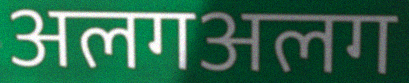
अलगअलग